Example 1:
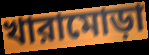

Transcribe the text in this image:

খারামোড়া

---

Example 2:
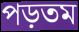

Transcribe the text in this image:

পড়তম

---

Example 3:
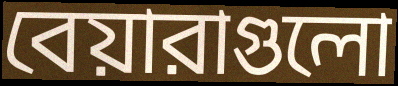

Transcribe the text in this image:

বেয়ারাগুলো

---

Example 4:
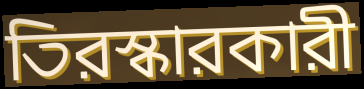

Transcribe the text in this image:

তিরস্কারকারী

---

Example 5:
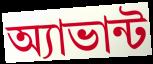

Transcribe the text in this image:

অ্যাভান্ট